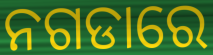
ନଗଡାରେ